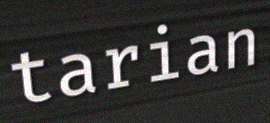
tarian